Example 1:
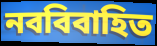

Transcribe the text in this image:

নববিবাহিত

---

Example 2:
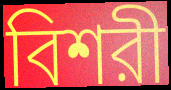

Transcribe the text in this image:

বিশরী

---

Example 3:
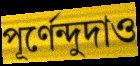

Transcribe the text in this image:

পূর্ণেন্দুদাও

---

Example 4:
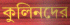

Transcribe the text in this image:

কুলিনদের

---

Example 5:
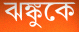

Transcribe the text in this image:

ঝঙ্কুকে